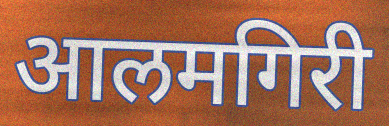
आलमगिरी